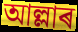
আল্লাৰ